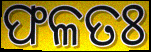
ଫଳତଃ